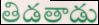
తిడతాడు